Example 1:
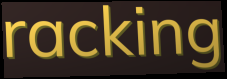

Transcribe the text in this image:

racking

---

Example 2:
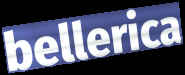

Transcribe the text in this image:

bellerica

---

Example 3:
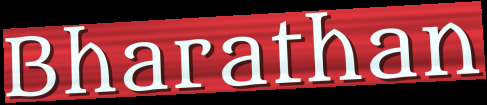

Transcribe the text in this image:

Bharathan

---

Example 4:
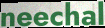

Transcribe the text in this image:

neechal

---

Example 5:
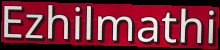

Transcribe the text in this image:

Ezhilmathi